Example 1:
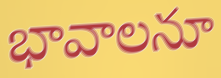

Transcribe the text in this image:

భావాలనూ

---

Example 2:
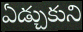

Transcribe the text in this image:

ఏడ్చుకుని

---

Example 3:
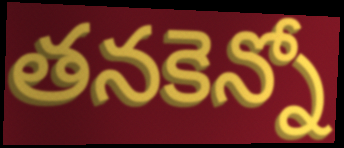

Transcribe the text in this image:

తనకెన్నో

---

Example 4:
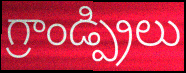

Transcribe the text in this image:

గ్రాండ్ప్రిలు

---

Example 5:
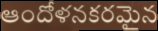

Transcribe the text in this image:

ఆందోళనకరమైన